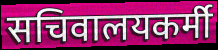
सचिवालयकर्मी